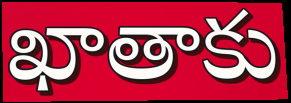
ఖాతాకు